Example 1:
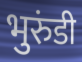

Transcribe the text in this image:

भुरुंडी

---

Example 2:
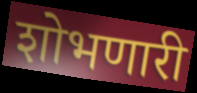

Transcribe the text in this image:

शोभणारी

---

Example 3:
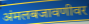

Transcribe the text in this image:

अंमलबजावणीवर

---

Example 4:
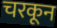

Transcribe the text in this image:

चरकून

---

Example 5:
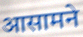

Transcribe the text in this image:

आसामने